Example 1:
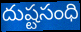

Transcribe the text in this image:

దుష్టసంధి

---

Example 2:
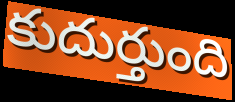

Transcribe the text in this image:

కుదుర్తుంది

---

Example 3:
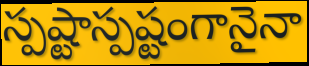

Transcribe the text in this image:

స్పష్టాస్పష్టంగానైనా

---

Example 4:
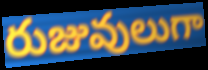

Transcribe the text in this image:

రుజువులుగా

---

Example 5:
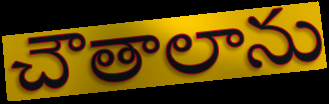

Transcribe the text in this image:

చౌతాలాను